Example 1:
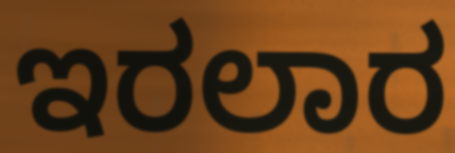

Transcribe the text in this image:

ಇರಲಾರ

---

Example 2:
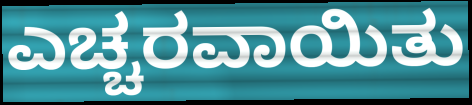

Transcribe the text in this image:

ಎಚ್ಚರವಾಯಿತು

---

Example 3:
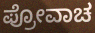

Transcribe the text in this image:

ಪ್ರೋವಾಚ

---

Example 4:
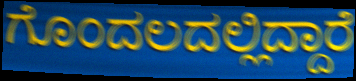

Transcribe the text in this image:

ಗೊಂದಲದಲ್ಲಿದ್ದಾರೆ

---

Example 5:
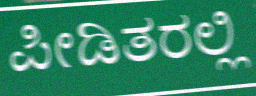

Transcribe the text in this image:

ಪೀಡಿತರಲ್ಲಿ